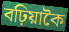
বঢ়িয়াকৈ